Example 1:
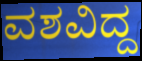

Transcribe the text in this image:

ವಶವಿದ್ದ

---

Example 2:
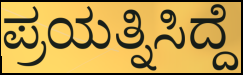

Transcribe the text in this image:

ಪ್ರಯತ್ನಿಸಿದ್ದೆ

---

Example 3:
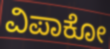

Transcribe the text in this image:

ವಿಪಾಕೋ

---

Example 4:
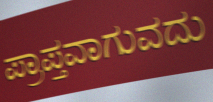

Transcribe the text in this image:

ಪ್ರಾಪ್ತವಾಗುವದು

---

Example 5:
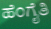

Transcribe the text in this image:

ಹೆಂಗೈತಿ